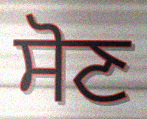
ਸੋਣ